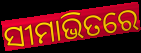
ସୀମାଭିତରେ